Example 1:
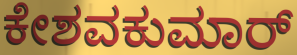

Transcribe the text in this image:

ಕೇಶವಕುಮಾರ್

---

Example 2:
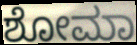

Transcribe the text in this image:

ಶೋಮಾ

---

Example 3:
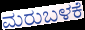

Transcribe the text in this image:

ಮರುಬಳಕೆ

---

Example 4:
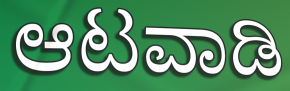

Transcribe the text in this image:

ಆಟವಾಡಿ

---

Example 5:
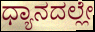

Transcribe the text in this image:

ಧ್ಯಾನದಲ್ಲೇ